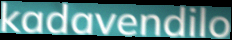
kadavendilo